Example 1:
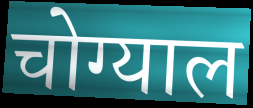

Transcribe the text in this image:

चोग्याल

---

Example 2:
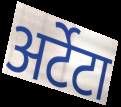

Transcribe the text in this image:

अर्टेटा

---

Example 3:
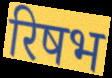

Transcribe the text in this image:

रिषभ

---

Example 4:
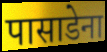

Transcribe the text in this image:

पासाडेना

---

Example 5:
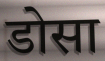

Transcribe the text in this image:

डोसा